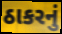
ઠાકરનું